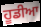
ਹੂਡੀਆ